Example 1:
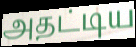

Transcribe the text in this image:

அதட்டிய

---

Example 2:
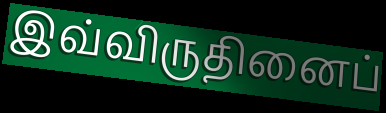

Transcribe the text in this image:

இவ்விருதினைப்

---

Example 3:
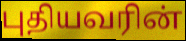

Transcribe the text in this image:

புதியவரின்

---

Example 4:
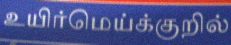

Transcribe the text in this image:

உயிர்மெய்க்குறில்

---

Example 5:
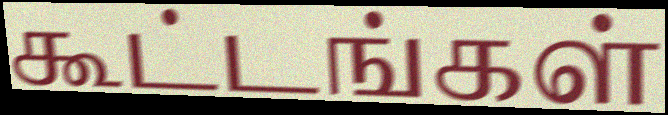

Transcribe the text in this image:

கூட்டங்கள்